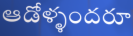
ఆడోళ్ళందరూ